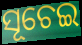
ସୂଚେଇ